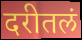
दरीतलं